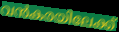
വൻകരയിലേക്ക്